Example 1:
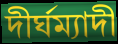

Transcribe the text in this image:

দীৰ্ঘম্যাদী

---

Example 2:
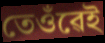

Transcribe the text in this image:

তেওঁৱেই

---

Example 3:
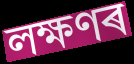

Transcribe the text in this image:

লক্ষণৰ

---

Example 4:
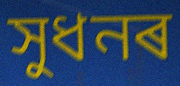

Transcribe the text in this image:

সুধনৰ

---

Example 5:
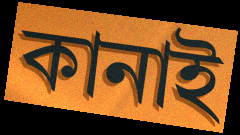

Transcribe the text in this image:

কানাই